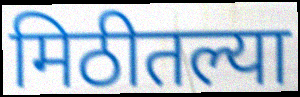
मिठीतल्या